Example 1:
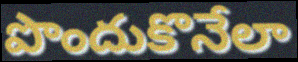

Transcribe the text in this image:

పొందుకొనేలా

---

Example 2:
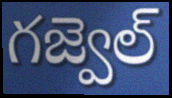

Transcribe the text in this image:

గజ్వెల్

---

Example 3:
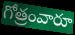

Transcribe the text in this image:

గోత్రంవారూ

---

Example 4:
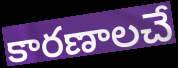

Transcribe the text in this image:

కారణాలచే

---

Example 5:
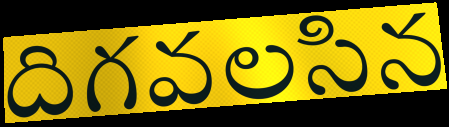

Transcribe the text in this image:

దిగవలసిన